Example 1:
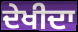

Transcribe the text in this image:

ਦੇਖੀਦਾ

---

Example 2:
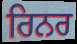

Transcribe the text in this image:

ਰਿਨਰ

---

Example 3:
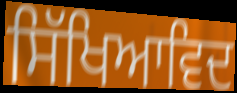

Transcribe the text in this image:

ਸਿੱਖਿਆਵਿਦ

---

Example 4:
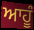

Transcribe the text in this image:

ਆਹੂੰ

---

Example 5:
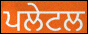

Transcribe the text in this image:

ਪਲੇਟਲ